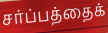
சர்ப்பத்தைக்